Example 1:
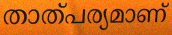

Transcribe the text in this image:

താത്പര്യമാണ്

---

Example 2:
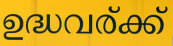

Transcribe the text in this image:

ഉദ്ധവര്ക്ക്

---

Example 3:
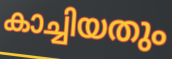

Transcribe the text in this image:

കാച്ചിയതും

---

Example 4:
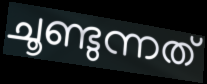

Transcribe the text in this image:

ചൂണ്ടുന്നത്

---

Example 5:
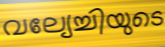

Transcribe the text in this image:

വല്യേച്ചിയുടെ